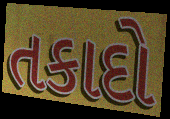
તકાદો